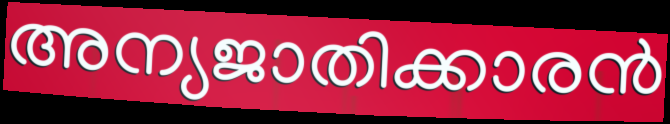
അന്യജാതിക്കാരൻ